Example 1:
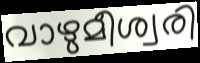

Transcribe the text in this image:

വാഴുമീശ്വരി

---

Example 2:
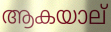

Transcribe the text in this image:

ആകയാല്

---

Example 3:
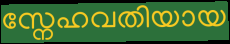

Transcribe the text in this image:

സ്നേഹവതിയായ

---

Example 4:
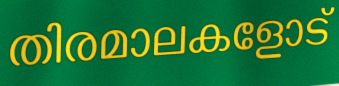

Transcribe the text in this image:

തിരമാലകളോട്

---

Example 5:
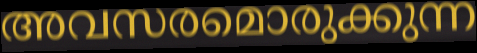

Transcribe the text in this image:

അവസരമൊരുക്കുന്ന